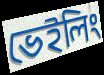
ভেইলিং